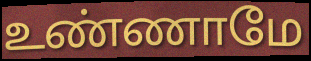
உண்ணாமே